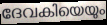
ദേവകിയെയും